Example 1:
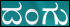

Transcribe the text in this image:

ದಂಗು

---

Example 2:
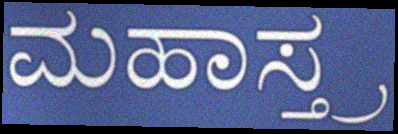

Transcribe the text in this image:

ಮಹಾಸ್ತ್ರ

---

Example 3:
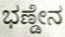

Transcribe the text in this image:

ಭಣ್ಡೇನ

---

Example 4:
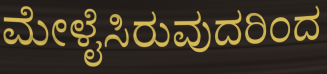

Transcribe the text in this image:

ಮೇಳೈಸಿರುವುದರಿಂದ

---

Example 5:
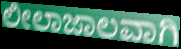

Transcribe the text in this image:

ಲೀಲಾಜಾಲವಾಗಿ